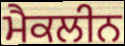
ਮੈਕਲੀਨ